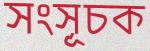
সংসূচক